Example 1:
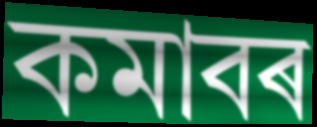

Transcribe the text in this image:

কমাবৰ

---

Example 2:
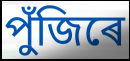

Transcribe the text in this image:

পুঁজিৰে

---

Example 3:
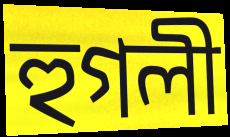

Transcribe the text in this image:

হুগলী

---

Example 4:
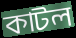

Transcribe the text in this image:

কাটল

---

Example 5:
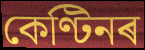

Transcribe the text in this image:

কেণ্টিনৰ